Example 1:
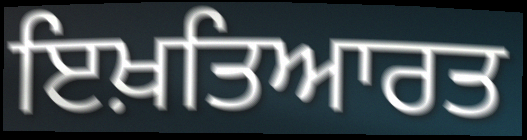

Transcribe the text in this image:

ਇਖ਼ਤਿਆਰਤ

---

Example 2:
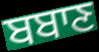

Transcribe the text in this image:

ਬਬਾਣ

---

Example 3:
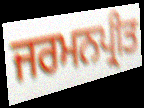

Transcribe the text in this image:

ਜਰਮਨਪ੍ਰੀਤ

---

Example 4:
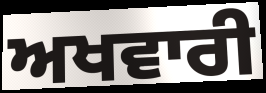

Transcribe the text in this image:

ਅਖਵਾਰੀ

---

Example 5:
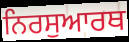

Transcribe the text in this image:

ਨਿਰਸੁਆਰਥ